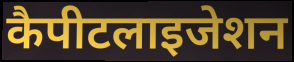
कैपीटलाइजेशन